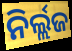
ନିର୍ଲ୍ଲଜ